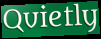
Quietly